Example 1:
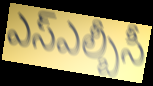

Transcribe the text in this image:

ఎస్ఎల్బీసీ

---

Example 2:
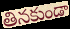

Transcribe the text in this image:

తినకుండా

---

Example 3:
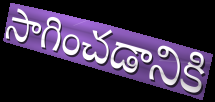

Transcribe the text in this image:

సాగించడానికి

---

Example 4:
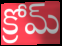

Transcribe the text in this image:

క్రోమ్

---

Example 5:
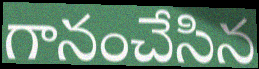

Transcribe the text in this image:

గానంచేసిన